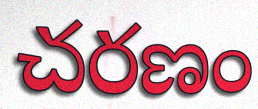
చరణం